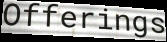
Offerings